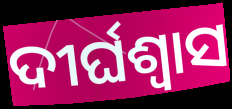
ଦୀର୍ଘଶ୍ବାସ